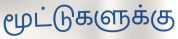
மூட்டுகளுக்கு